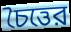
চৈত্তের